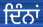
ਦਿੰਨਾਂ